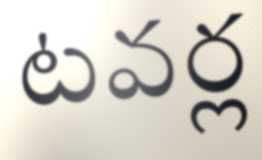
టవర్ల